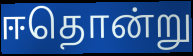
ஈதொன்று